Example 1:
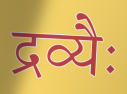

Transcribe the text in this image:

द्रव्यैः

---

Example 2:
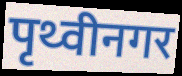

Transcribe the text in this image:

पृथ्वीनगर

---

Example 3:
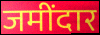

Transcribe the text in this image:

जमींदार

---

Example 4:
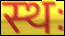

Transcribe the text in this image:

स्थः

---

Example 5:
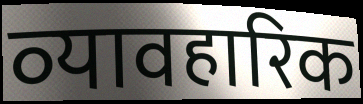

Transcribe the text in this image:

व्‍यावहारिक